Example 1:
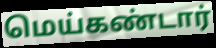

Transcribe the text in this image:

மெய்கண்டார்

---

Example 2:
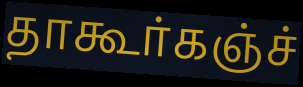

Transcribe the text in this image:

தாகூர்கஞ்ச்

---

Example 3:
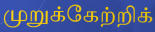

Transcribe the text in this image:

முறுக்கேற்றிக்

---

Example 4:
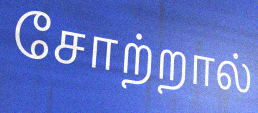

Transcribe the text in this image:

சோற்றால்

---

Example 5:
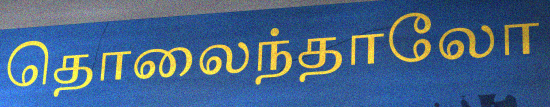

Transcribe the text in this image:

தொலைந்தாலோ